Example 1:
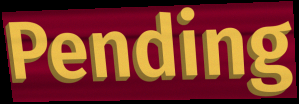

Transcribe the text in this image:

Pending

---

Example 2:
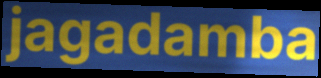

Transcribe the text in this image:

jagadamba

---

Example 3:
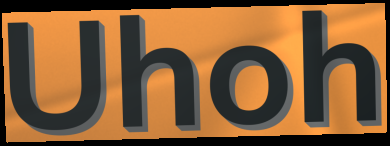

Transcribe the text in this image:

Uhoh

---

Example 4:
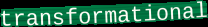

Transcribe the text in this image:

transformational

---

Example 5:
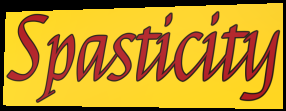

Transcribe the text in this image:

Spasticity